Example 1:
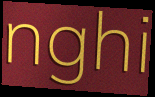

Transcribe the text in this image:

nghi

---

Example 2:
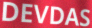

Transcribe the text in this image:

DEVDAS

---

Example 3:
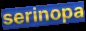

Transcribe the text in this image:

serinopa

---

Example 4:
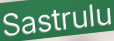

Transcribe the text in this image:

Sastrulu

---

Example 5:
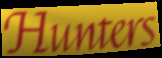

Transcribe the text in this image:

Hunters